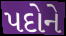
પદોને